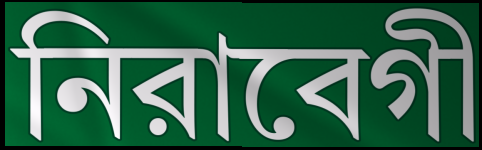
নিরাবেগী